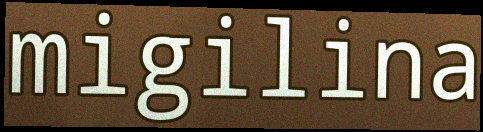
migilina